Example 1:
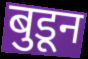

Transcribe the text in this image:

बुडून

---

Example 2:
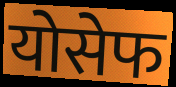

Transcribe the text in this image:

योसेफ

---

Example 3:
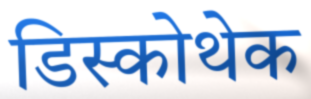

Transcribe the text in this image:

डिस्कोथेक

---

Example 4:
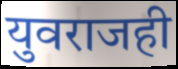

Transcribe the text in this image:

युवराजही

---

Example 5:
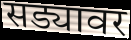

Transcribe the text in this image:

सड्यावर